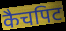
कैचपिट